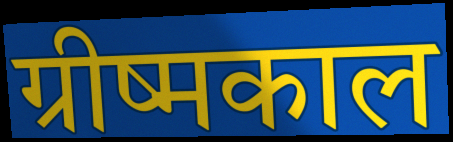
ग्रीष्मकाल